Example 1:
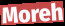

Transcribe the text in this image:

Moreh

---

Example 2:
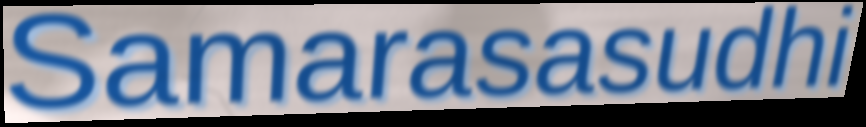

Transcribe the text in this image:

Samarasasudhi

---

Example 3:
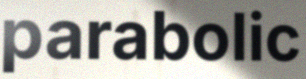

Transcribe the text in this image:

parabolic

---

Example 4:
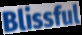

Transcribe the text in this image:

Blissful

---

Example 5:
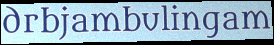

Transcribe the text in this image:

drbjambulingam